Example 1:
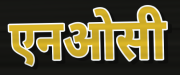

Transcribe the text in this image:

एनओसी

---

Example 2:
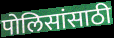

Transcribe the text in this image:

पोलिसांसाठी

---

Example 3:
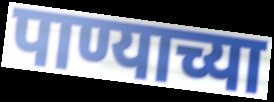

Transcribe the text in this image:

पाण्याच्या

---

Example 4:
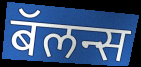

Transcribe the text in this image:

बॅलन्स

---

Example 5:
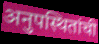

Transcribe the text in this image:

अनुपस्थितांची